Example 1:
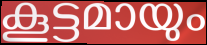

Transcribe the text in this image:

കൂട്ടമായും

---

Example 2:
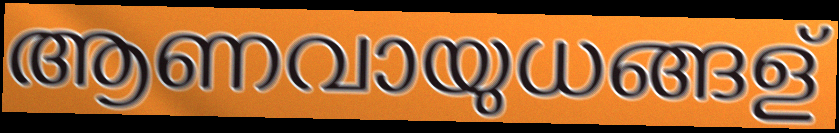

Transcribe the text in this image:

ആണവായുധങ്ങള്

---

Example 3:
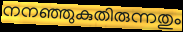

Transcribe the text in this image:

നനഞ്ഞുകുതിരുന്നതും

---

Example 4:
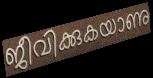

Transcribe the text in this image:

ജീവിക്കുകയാണു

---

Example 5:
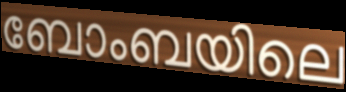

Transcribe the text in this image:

ബോംബയിലെ